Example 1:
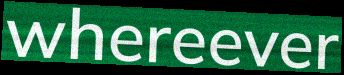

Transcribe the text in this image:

whereever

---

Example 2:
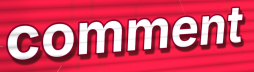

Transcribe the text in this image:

comment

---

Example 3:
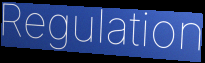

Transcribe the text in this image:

Regulation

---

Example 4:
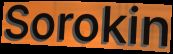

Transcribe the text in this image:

Sorokin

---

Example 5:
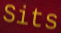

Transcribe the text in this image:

Sits